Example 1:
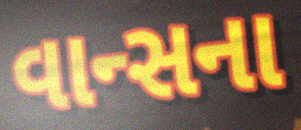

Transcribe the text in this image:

વાન્સના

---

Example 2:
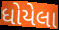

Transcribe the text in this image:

ધોયેલા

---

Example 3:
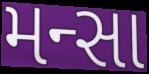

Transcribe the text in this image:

મન્સા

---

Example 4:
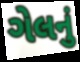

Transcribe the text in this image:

ગેલનું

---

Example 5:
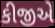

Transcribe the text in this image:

કીજીએ